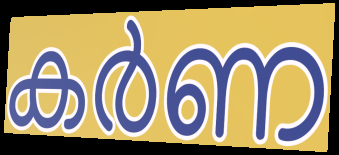
കർണ